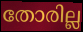
തോരില്ല